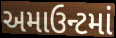
અમાઉન્ટમાં